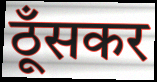
ठूँसकर